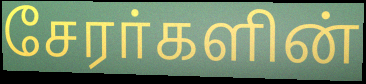
சேரர்களின்